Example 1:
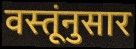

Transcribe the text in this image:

वस्तूंनुसार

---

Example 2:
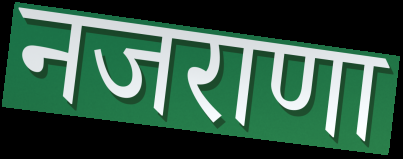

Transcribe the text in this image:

नजराणा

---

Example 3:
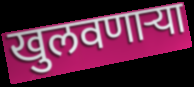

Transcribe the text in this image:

खुलवणाऱ्या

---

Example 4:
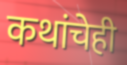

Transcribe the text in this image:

कथांचेही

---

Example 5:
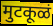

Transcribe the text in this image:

मुटकूळं